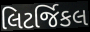
લિટર્જિકલ